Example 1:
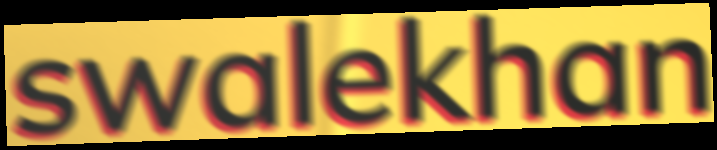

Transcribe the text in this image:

swalekhan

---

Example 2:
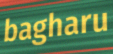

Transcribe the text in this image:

bagharu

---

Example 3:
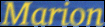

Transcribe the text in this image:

Marion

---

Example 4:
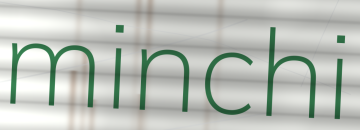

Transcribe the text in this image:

minchi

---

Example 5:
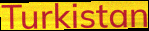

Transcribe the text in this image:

Turkistan